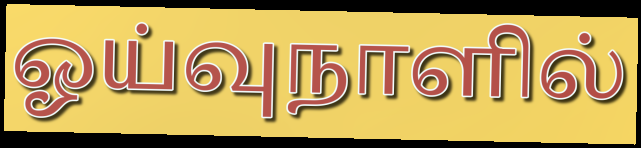
ஓய்வுநாளில்